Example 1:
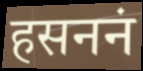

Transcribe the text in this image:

हसननं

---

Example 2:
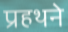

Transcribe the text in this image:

प्रहथने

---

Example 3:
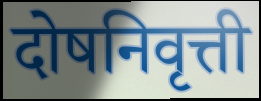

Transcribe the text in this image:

दोषनिवृत्ती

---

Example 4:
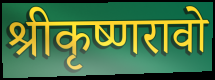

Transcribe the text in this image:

श्रीकृष्णरावो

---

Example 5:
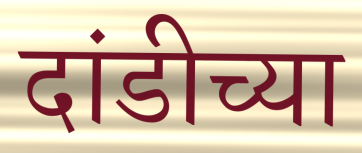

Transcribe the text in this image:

दांडीच्या